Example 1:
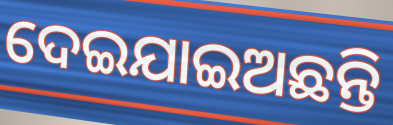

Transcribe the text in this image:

ଦେଇଯାଇଅଛନ୍ତି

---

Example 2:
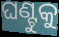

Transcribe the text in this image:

ଘଣ୍ଟୁକୁ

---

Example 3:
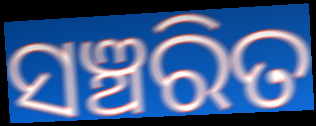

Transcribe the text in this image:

ସଞ୍ଚରିତ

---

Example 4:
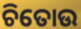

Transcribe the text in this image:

ଚିତୋଉ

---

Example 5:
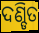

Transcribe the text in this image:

ଦଣ୍ଡିତ